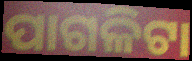
ପାଗଳିଟା